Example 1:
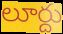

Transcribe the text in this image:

లూర్దు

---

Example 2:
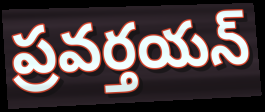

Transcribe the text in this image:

ప్రవర్తయన్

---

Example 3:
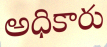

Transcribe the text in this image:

అధికారు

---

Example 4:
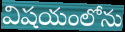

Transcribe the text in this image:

విషయంలోను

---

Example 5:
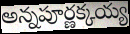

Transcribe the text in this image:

అన్నపూర్ణక్కయ్య